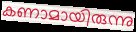
കണാമായിരുന്നു